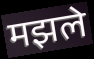
मझले